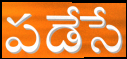
పడేసే